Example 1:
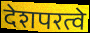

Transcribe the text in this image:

देशपरत्वे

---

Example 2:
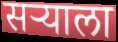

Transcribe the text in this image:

सऱ्याला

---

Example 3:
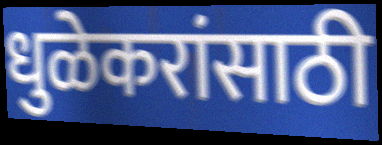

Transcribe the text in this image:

धुळेकरांसाठी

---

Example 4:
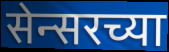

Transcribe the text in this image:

सेन्सरच्या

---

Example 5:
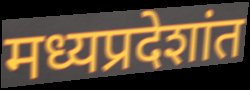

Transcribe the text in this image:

मध्यप्रदेशांत